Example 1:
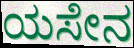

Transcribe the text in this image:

ಯಸೇನ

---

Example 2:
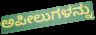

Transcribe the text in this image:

ಅಪೀಲುಗಳನ್ನು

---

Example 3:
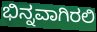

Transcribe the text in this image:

ಭಿನ್ನವಾಗಿರಲಿ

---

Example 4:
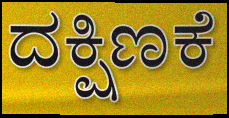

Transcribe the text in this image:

ದಕ್ಷಿಣಕೆ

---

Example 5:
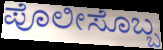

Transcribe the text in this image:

ಪೊಲೀಸೊಬ್ಬ